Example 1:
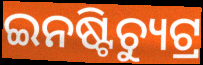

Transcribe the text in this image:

ଇନଷ୍ଟିଚ୍ୟୁଟ୍ର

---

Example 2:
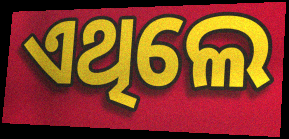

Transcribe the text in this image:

ଏଥିଲେ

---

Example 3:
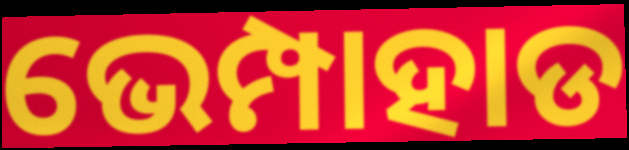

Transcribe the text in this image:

ଭେମ୍ପାହାଡ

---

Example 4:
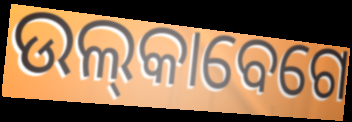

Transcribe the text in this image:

ଉଲ୍‌କାବେଗେ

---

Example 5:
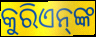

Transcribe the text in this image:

କୁରିଏନ୍‌ଙ୍କ